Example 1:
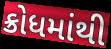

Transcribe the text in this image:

ક્રોધમાંથી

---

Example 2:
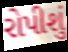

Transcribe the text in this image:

રોપીશું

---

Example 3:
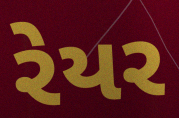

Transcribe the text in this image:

રેયર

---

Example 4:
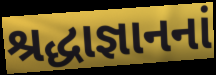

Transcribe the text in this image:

શ્રદ્ધાજ્ઞાનનાં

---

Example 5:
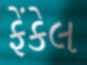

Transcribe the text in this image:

ફેંકેલ